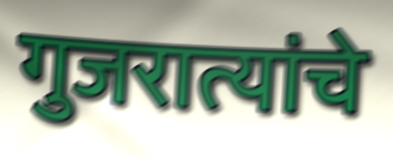
गुजरात्यांचे